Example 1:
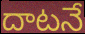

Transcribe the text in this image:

దాటనే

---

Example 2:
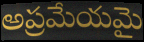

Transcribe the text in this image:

అప్రమేయమై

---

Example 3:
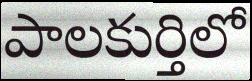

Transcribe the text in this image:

పాలకుర్తిలో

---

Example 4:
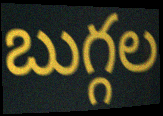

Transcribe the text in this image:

బుగ్గల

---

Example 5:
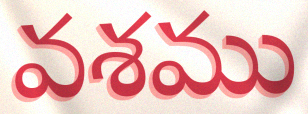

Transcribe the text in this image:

వశము